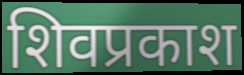
शिवप्रकाश